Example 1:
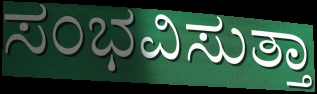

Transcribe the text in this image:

ಸಂಭವಿಸುತ್ತಾ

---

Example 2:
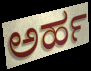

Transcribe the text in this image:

ಅರ್ಹ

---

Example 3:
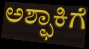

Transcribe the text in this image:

ಅಶ್ಫಾಕಿಗೆ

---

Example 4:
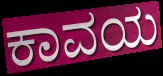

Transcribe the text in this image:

ಕಾವಯ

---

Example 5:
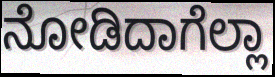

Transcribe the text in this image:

ನೋಡಿದಾಗೆಲ್ಲಾ